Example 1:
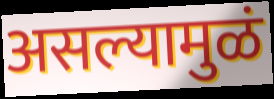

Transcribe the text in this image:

असल्यामुळं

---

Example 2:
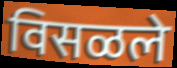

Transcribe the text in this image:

विसळले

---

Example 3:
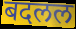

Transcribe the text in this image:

बदलल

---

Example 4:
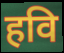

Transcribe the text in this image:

हवि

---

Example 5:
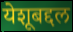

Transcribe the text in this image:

येशूबद्दल